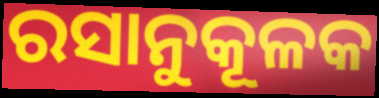
ରସାନୁକୂଳକ